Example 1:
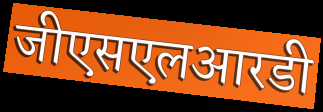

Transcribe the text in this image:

जीएसएलआरडी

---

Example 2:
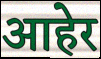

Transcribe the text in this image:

आहेर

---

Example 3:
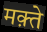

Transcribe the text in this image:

मक़्ते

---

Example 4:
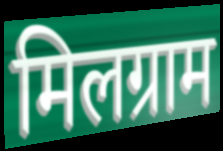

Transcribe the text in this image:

मिलग्राम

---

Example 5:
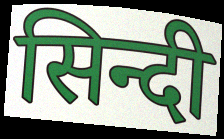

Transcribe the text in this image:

सिन्दी